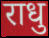
राधु